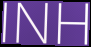
INH